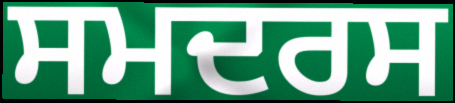
ਸਮਦਰਸ